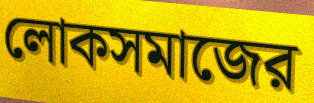
লোকসমাজের